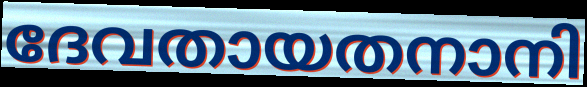
ദേവതായതനാനി